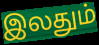
இலதும்